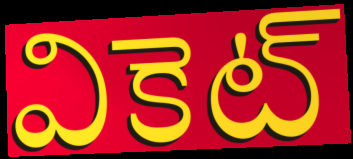
వికెట్